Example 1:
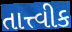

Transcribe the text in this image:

તાત્ત્વીક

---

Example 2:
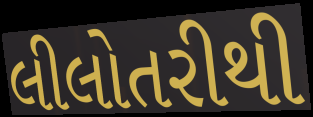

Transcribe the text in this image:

લીલોતરીથી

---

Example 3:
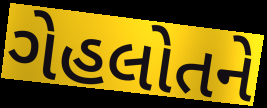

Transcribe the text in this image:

ગેહલોતને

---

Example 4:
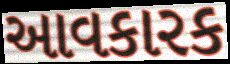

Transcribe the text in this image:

આવકારક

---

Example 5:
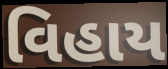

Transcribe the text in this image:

વિહાય